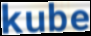
kube